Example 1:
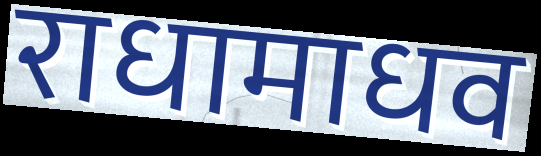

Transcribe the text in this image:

राधामाधव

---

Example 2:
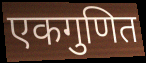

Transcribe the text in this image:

एकगुणित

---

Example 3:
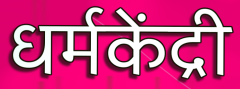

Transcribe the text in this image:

धर्मकेंद्री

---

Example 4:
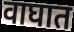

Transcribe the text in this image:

वाघात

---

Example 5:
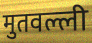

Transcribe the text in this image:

मुतवल्ली